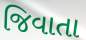
જિવાતા